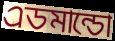
এডমান্ডো